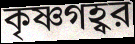
কৃষ্ণগহ্বর